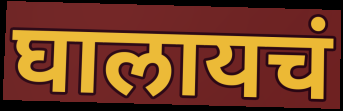
घालायचं